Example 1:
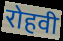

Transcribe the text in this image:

रोहवी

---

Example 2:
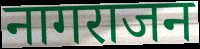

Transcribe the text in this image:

नागराजन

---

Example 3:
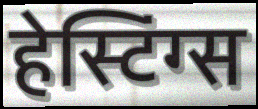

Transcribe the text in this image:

हेस्टिंग्स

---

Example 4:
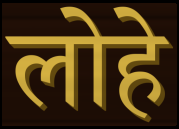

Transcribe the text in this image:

लोहे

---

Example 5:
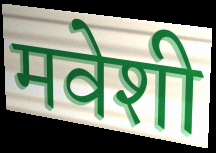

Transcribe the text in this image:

मवेशी